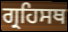
ਗ੍ਰਹਿਸਥ